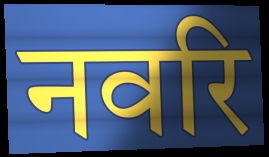
नवरि